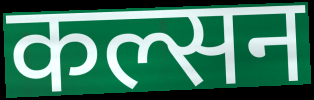
कल्सन